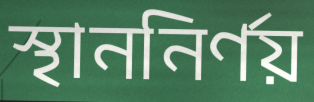
স্থাননির্ণয়